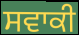
ਸਵਾਕੀ